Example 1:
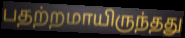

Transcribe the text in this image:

பதற்றமாயிருந்தது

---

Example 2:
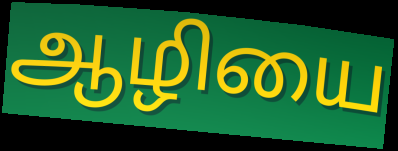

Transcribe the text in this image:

ஆழியை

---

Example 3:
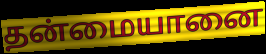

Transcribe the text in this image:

தன்மையானை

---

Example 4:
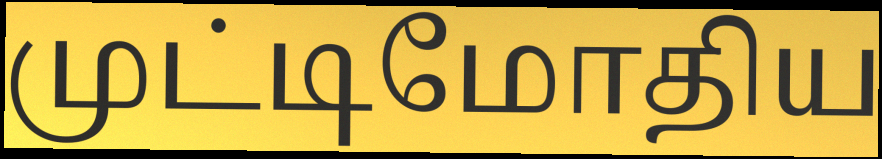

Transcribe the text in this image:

முட்டிமோதிய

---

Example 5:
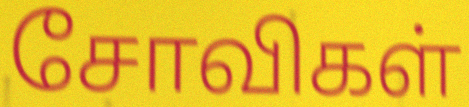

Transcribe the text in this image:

சோவிகள்